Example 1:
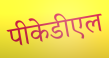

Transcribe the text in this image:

पीकेडीएल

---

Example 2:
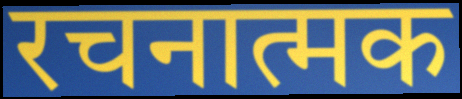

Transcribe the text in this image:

रचनात्मक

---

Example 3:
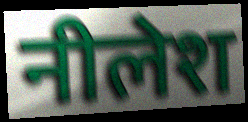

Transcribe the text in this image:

नीलेश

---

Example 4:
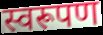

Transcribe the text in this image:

स्वरूपण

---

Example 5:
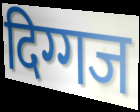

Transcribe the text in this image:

दिग्गज